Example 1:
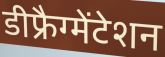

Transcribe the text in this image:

डीफ्रैग्मेंटेशन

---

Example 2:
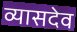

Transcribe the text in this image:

व्यासदेव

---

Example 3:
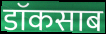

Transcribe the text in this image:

डॉकसाब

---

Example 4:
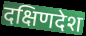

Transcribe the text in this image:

दक्षिणदेश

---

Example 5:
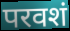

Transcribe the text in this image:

परवशं